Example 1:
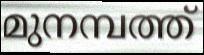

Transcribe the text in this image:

മുനമ്പത്ത്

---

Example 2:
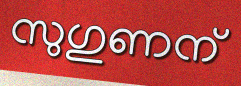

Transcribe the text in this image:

സുഗുണന്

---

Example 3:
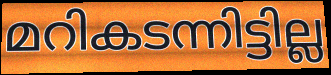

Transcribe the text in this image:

മറികടന്നിട്ടില്ല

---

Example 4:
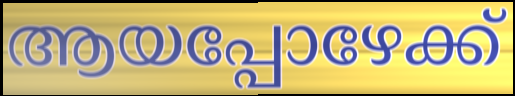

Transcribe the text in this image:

ആയപ്പോഴേക്ക്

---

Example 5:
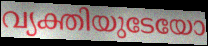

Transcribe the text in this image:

വ്യക്തിയുടേയോ